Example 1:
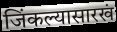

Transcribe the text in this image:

जिंकल्यासारखं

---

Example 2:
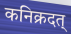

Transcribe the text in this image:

कनिक्रदत्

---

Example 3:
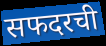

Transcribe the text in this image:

सफदरची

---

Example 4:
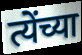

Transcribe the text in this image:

त्येंच्या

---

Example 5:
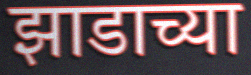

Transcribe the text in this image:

झाडाच्या